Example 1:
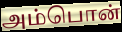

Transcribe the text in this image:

அம்பொன்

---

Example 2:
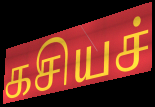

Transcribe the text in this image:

கசியச்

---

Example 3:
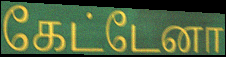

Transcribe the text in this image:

கேட்டேனா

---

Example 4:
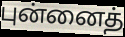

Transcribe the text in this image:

புன்னைத்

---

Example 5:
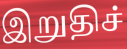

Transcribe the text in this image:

இறுதிச்